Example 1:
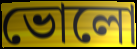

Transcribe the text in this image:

ভোলো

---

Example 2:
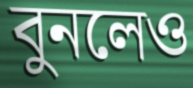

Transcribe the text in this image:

বুনলেও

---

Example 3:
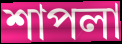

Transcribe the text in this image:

শাপলা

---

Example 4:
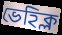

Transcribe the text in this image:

ভেহিক্ল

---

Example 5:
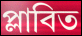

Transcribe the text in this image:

প্লাবিত